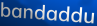
bandaddu